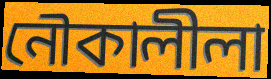
নৌকালীলা